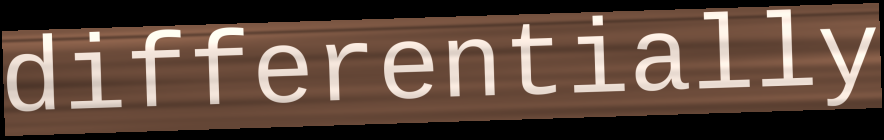
differentially